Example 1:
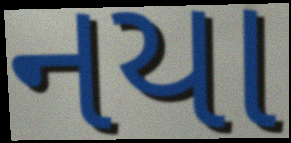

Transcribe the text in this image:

નયા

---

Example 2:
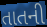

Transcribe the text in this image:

તાતની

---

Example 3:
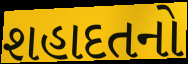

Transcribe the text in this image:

શહાદતનો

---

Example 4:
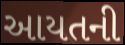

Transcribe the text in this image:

આયતની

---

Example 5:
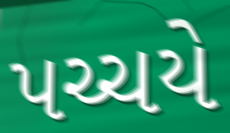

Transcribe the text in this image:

પચ્ચયે